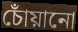
চোঁয়ানো